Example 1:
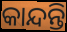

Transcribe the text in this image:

କାନ୍ଦନ୍ତି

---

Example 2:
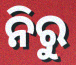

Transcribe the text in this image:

ନିରୁ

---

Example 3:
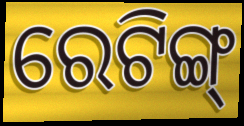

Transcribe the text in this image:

ରେଟିଙ୍ଗ୍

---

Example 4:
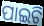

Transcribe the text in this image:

ପାଇଚି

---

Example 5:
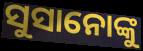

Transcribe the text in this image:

ସୁସାନୋଙ୍କୁ